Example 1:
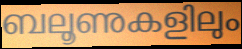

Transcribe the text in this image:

ബലൂണുകളിലും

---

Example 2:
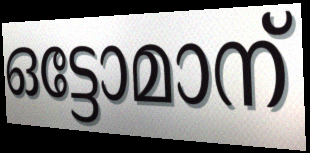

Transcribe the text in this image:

ഒട്ടോമാന്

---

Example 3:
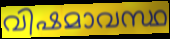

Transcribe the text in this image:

വിഷമാവസ്ഥ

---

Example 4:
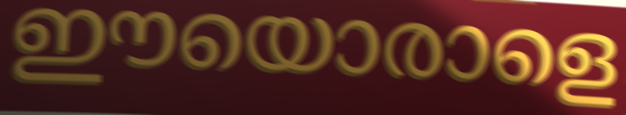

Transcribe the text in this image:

ഈയൊരാളെ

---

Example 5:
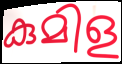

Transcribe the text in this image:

കുമിള